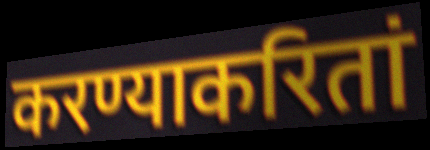
करण्याकरितां